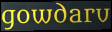
gowdaru